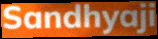
Sandhyaji